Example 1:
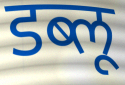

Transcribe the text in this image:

डब्लू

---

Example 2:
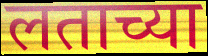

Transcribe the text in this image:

लताच्या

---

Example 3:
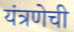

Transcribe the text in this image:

यंत्रणेची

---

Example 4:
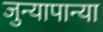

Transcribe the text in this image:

जुन्यापान्या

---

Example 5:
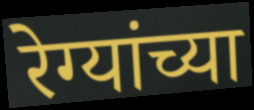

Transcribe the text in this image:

रेग्यांच्या